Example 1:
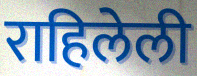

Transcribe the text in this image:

राहिलेली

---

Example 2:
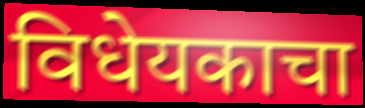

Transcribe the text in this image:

विधेयकाचा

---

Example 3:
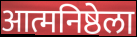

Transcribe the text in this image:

आत्मनिष्ठेला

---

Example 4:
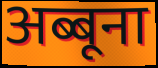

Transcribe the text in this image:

अब्बूना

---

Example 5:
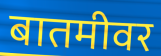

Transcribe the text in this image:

बातमीवर